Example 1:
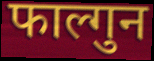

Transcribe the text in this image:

फाल्गुन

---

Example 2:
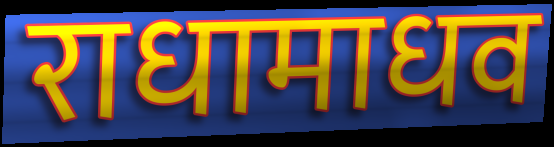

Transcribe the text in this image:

राधामाधव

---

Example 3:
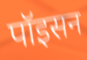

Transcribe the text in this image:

पॉइसन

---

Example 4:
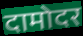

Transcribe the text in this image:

दामोदर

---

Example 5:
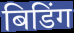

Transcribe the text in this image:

बिडिंग